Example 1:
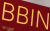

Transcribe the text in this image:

BBIN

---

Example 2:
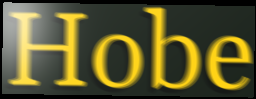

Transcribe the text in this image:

Hobe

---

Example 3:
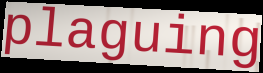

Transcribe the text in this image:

plaguing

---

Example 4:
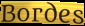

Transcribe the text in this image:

Bordes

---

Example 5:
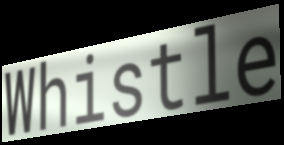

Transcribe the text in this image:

Whistle